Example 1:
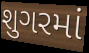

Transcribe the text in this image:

શુગરમાં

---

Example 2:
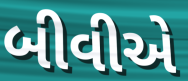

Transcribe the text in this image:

બીવીએ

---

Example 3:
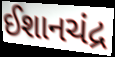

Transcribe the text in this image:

ઈશાનચંદ્ર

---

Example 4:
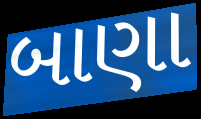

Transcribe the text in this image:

બાણા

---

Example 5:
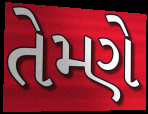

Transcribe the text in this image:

તેમ્ણે